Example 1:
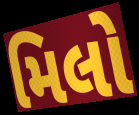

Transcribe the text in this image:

મિલો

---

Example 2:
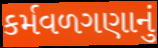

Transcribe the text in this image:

કર્મવળગણાનું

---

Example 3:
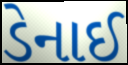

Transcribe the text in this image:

ડેનાઈ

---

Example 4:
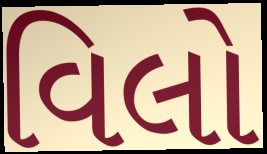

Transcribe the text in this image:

વિલો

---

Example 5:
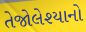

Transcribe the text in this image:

તેજોલેશ્યાનો